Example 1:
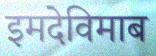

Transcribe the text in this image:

इमदेविमाब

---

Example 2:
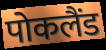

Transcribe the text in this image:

पोकलैंड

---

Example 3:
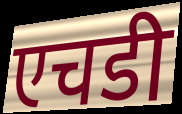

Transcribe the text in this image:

एचडी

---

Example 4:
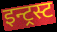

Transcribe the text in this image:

इन्ट्रस्ट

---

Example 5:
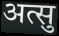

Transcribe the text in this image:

अत्सु